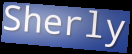
Sherly